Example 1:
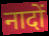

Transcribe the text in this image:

नादों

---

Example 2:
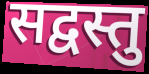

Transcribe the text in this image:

सद्वस्तु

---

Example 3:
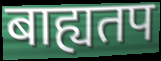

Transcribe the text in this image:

बाह्यतप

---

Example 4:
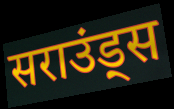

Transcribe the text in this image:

सराउंड्स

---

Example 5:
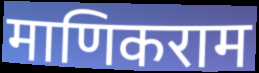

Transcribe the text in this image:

माणिकराम